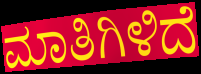
ಮಾತಿಗಿಳಿದೆ